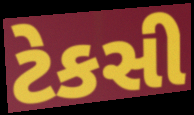
ટેકસી